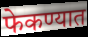
फेकण्यात